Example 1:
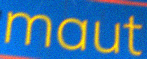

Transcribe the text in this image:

maut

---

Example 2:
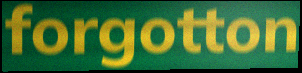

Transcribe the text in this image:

forgotton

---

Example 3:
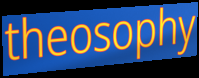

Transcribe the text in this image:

theosophy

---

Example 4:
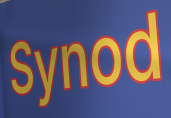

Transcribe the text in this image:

Synod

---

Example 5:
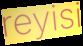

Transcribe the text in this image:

reyisi